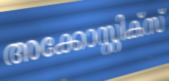
അക്കോസ്റ്റിക്സ്